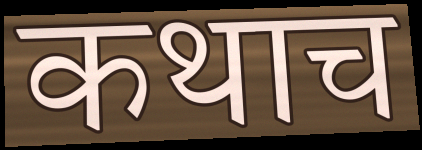
कथाच